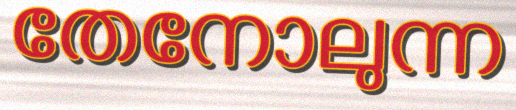
തേനോലുന്ന